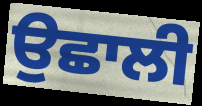
ਉਛਾਲੀ